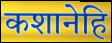
कशानेहि